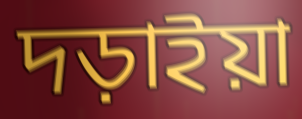
দড়াইয়া